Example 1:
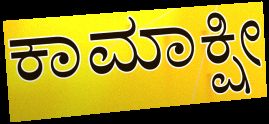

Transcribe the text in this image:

ಕಾಮಾಕ್ಷೀ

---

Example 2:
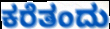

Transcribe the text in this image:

ಕರೆತಂದು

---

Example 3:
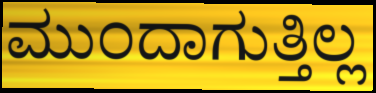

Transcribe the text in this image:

ಮುಂದಾಗುತ್ತಿಲ್ಲ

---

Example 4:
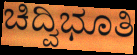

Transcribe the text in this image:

ಚಿದ್ವಿಭೂತಿ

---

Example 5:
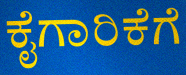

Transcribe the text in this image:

ಕೈಗಾರಿಕೆಗೆ